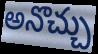
అనొచ్చు